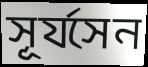
সূর্যসেন